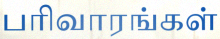
பரிவாரங்கள்